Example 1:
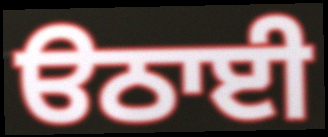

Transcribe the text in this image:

ੳਠਾਈ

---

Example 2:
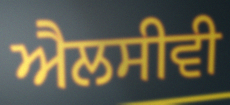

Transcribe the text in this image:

ਐਲਸੀਵੀ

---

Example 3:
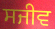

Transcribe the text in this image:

ਸਜੀਵ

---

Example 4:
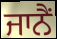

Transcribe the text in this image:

ਜਾਨੈਂ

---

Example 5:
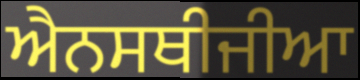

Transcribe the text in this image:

ਐਨਸਥੀਜੀਆ